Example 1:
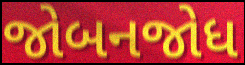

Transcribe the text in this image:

જોબનજોધ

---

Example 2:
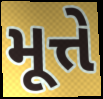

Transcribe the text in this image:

મૂત્તે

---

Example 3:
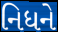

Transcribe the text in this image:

નિધને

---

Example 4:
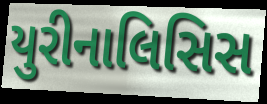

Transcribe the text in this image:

યુરીનાલિસિસ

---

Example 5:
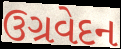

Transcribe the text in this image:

ઉગ્રવેદન